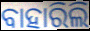
ବାହାରିଲି